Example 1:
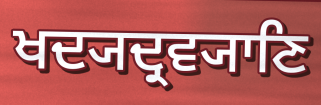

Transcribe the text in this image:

ਖਦ੍ਯਦ੍ਰਵ੍ਯਾਣਿ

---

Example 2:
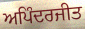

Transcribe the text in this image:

ਅਪਿੰਦਰਜੀਤ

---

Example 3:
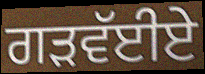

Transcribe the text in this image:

ਗੜਵੱਈਏ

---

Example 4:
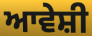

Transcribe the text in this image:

ਆਵੇਸ਼ੀ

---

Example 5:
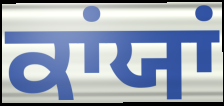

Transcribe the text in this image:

ਕਾਂਯਾਂ